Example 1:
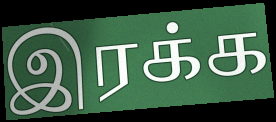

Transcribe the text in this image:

இரக்க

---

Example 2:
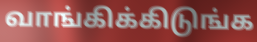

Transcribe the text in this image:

வாங்கிக்கிடுங்க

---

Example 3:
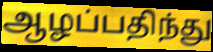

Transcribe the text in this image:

ஆழப்பதிந்து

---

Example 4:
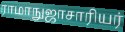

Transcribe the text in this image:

ராமாநுஜாசாரியர்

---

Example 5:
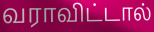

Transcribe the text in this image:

வராவிட்டால்